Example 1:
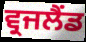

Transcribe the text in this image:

ਵ੍ਰਜਲੈਂਡ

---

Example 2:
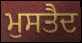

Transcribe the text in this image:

ਮੁਸਤੈਦ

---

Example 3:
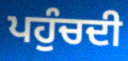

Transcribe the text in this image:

ਪਹੁੰਚਦੀ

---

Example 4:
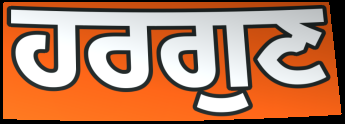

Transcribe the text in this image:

ਹਰਗੁਣ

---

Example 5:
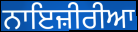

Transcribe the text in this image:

ਨਾਇਜ਼ੀਰੀਆ